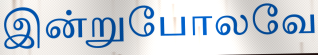
இன்றுபோலவே